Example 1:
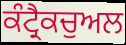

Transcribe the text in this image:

ਕੰਟ੍ਰੈਕਚੁਅਲ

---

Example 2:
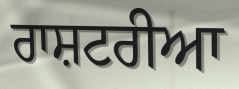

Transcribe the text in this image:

ਰਾਸ਼ਟਰੀਆ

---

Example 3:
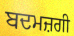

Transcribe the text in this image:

ਬਦਮਜ਼ਗੀ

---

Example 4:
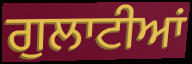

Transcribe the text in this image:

ਗੁਲਾਟੀਆਂ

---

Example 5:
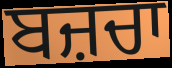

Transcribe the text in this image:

ਬਜ਼ਚਾ